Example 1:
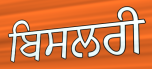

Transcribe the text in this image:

ਬਿਸਲਰੀ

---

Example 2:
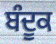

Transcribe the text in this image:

ਬੰਦੂਕ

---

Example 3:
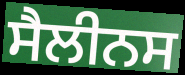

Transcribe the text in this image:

ਸੈਲੀਨਸ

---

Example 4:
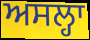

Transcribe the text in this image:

ਅਸਲ੍ਹਾ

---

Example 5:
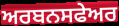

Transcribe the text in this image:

ਅਰਬਨਸਫੇਅਰ